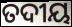
ତଦୀୟ